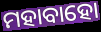
ମହାବାହୋ